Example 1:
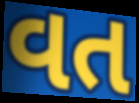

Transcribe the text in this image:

વત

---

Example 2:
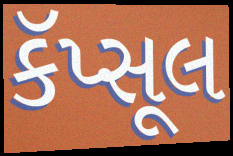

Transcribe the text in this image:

કૅપ્સૂલ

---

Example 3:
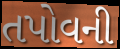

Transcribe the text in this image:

તપોવની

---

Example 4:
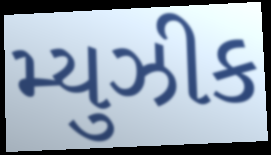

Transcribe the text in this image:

મ્યુઝીક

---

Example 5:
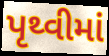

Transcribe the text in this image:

પૃથ્વીમાં